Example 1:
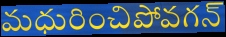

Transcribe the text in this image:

మధురించిపోవగన్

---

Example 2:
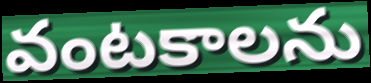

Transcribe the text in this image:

వంటకాలను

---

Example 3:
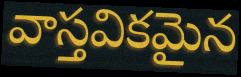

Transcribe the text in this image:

వాస్తవికమైన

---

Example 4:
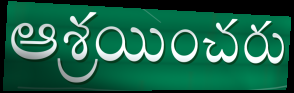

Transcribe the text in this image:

ఆశ్రయించరు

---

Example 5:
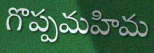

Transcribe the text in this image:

గొప్పమహిమ